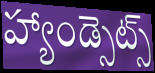
హ్యాండ్సెట్స్